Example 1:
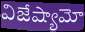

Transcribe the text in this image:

విజేష్యామో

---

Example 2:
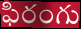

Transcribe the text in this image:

ఫిరంగు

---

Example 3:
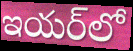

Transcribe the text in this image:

ఇయర్‌లో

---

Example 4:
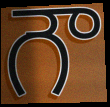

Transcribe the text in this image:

గౌ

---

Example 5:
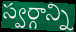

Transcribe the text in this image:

స్వర్గాన్ని